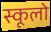
स्कूलो